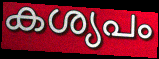
കശ്യപം